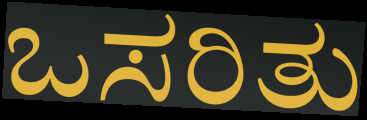
ಒಸರಿತು